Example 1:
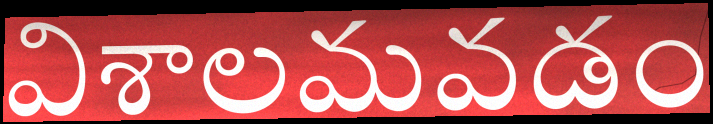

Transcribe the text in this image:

విశాలమవడం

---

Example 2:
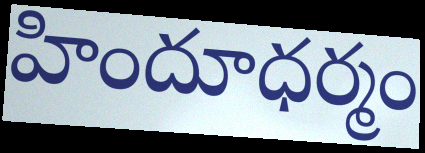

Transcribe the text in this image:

హిందూధర్మం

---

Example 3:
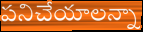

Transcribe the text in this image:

పనిచేయాలన్నా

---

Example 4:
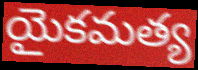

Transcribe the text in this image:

యైకమత్య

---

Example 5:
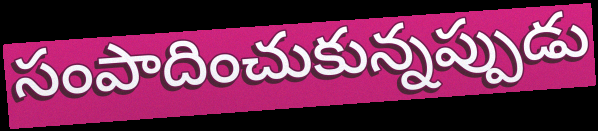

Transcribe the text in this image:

సంపాదించుకున్నప్పుడు